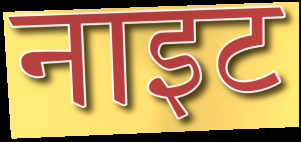
नाइट